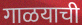
गाळयाची